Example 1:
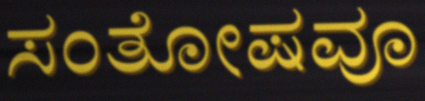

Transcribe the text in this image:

ಸಂತೋಷವೂ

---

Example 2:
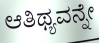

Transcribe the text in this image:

ಆತಿಥ್ಯವನ್ನೇ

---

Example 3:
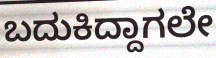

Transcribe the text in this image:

ಬದುಕಿದ್ದಾಗಲೇ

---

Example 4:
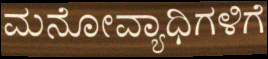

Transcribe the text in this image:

ಮನೋವ್ಯಾಧಿಗಳಿಗೆ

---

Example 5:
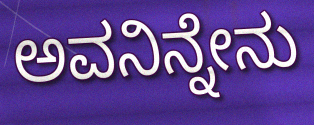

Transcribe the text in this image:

ಅವನಿನ್ನೇನು